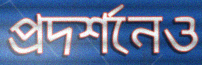
প্রদর্শনেও